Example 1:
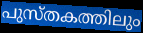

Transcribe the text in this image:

പുസ്തകത്തിലും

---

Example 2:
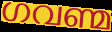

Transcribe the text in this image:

ഗവണ്മ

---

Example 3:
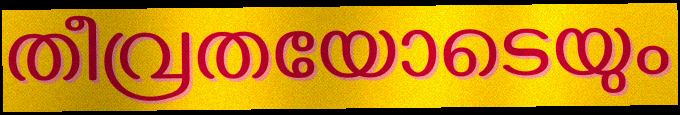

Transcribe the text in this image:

തീവ്രതയോടെയും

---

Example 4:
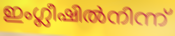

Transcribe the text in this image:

ഇംഗ്ലീഷിൽനിന്ന്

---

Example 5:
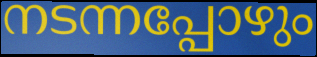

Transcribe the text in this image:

നടന്നപ്പോഴും